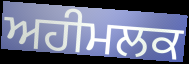
ਅਹੀਮਲਕ